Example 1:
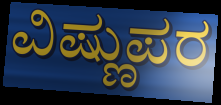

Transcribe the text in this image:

ವಿಷ್ಣುಪರ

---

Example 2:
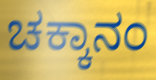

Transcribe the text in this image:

ಚಕ್ಕಾನಂ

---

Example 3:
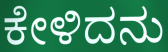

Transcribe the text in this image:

ಕೇಳಿದನು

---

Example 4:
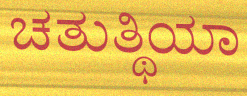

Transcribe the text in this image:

ಚತುತ್ಥಿಯಾ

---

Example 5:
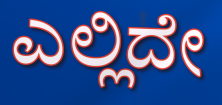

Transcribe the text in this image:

ಎಲ್ಲಿದೇ